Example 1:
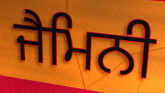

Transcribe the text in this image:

ਜੈਮਿਨੀ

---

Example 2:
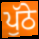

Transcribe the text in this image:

ਪੁੱਠੇ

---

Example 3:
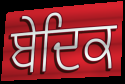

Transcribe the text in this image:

ਬੇਦਿਕ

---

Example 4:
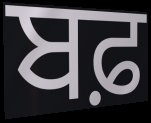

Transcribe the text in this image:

ਬਫ਼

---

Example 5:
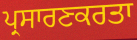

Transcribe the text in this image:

ਪ੍ਰਸਾਰਣਕਰਤਾ